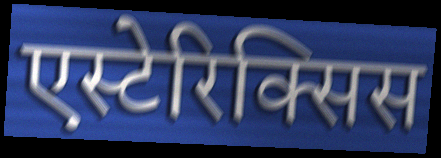
एस्टेरिक्सिस